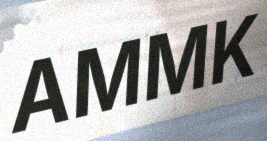
AMMK